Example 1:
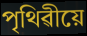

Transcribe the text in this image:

পৃথিৱীয়ে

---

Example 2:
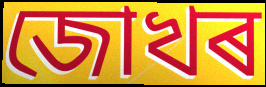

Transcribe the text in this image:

জোখৰ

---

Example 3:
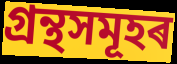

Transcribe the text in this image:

গ্ৰন্থসমূহৰ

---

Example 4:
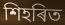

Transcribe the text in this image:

শিহৰিত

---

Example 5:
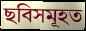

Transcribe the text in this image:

ছবিসমূহত